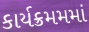
કાર્યક્રમમમાં